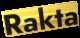
Rakta